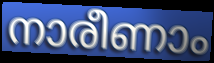
നാരീണാം